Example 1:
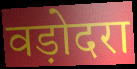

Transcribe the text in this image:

वड़ोदरा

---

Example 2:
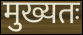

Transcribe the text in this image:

मुख्यतः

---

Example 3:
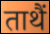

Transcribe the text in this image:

ताथैं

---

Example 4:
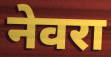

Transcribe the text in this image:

नेवरा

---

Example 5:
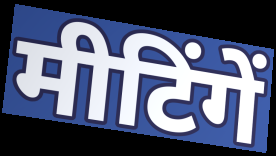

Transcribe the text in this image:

मीटिंगें